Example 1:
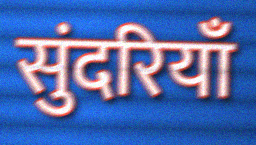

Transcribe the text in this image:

सुंदरियाँ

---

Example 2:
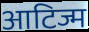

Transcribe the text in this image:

आटिज्म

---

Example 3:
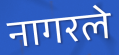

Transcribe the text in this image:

नागरले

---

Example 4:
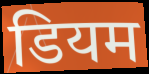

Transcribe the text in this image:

डियम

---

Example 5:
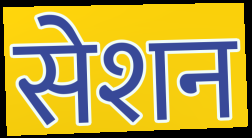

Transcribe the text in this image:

सेशन